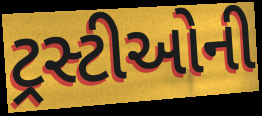
ટ્રસ્ટીઓની